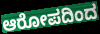
ಆರೋಪದಿಂದ